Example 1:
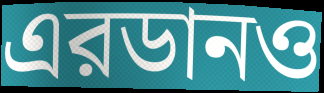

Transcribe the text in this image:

এরডানও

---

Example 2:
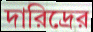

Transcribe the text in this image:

দারিদ্রের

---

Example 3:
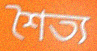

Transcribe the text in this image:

শৈত্য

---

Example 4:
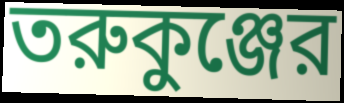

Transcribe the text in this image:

তরুকুঞ্জের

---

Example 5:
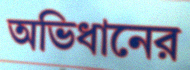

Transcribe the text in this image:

অভিধানের